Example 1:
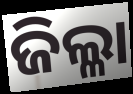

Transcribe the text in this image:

ଜିଲ୍ଳା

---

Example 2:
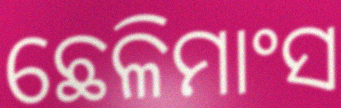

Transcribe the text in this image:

ଛେଳିମାଂସ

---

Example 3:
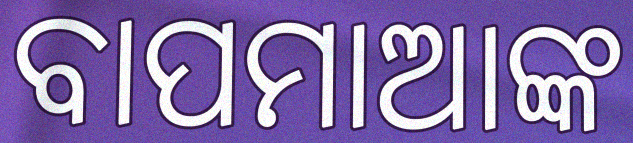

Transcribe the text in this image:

ବାପମାଆଙ୍କ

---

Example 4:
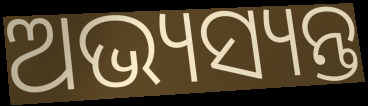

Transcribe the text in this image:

ଅଭ୍ୟସ୍ୟନ୍ତ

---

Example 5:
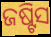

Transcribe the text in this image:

ଜଷ୍ଟିସ